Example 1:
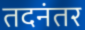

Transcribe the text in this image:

तदनंतर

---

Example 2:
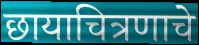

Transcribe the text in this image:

छायाचित्रणाचे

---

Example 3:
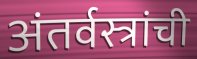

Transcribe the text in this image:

अंतर्वस्त्रांची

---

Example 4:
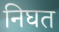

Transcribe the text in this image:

निघत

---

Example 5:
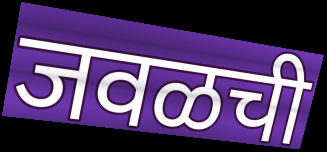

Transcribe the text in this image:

जवळची